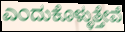
ಎಂದುಕೊಳ್ಳುತ್ತೇವೆ